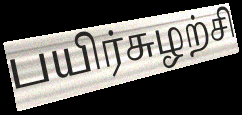
பயிர்சுழற்சி